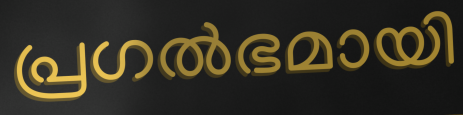
പ്രഗൽഭമായി